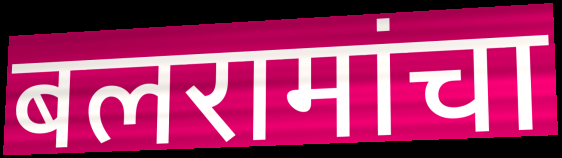
बलरामांचा